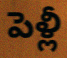
పెళ్లీ